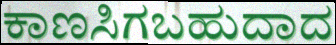
ಕಾಣಸಿಗಬಹುದಾದ